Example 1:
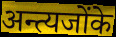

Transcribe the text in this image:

अन्त्यजोंके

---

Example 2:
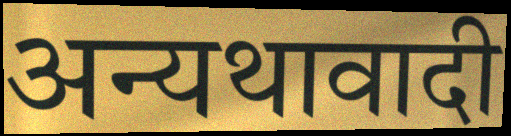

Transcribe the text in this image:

अन्यथावादी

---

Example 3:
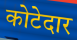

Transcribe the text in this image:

कोटेदार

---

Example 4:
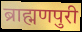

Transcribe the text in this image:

ब्राह्मणपुरी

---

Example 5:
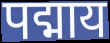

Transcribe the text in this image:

पद्माय